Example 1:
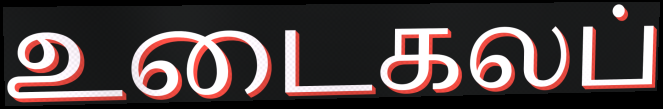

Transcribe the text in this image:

உடைகலப்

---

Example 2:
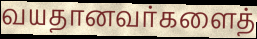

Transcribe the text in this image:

வயதானவர்களைத்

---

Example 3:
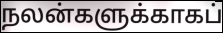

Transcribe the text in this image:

நலன்களுக்காகப்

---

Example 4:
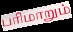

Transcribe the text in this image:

பரிமாறும்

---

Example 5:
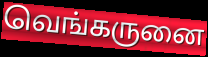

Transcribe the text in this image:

வெங்கருனை